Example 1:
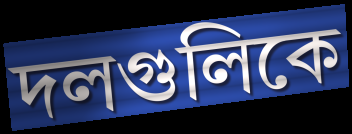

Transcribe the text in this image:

দলগুলিকে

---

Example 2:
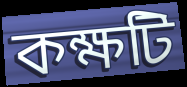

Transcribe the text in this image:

কক্ষটি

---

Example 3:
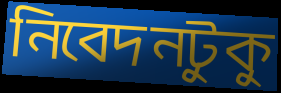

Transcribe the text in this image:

নিবেদনটুকু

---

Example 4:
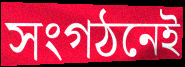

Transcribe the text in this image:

সংগঠনেই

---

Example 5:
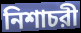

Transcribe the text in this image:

নিশাচরী